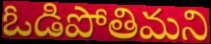
ఓడిపోతిమని